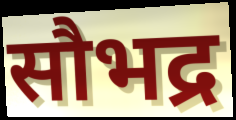
सौभद्र